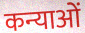
कन्‍याओं